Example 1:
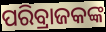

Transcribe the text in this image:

ପରିବ୍ରାଜକଙ୍କ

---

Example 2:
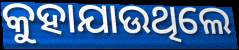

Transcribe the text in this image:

କୁହାଯାଉଥିଲେ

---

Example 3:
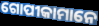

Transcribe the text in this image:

ଗୋପୀକାମାନେ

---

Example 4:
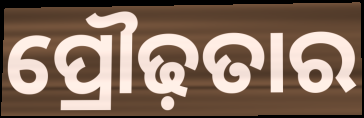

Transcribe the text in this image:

ପ୍ରୌଢ଼ତାର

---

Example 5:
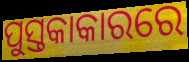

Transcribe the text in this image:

ପୁସ୍ତକାକାରରେ